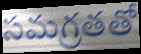
సమగ్రతతో